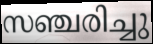
സഞ്ചരിച്ചു